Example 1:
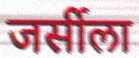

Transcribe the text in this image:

जर्सीला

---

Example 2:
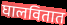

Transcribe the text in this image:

घालवितात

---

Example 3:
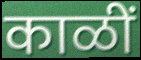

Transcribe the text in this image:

काळीं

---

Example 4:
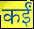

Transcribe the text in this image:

कईं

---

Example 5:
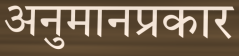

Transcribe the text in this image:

अनुमानप्रकार